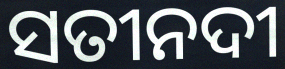
ସତୀନଦୀ